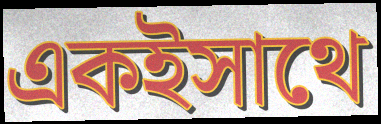
একইসাথে